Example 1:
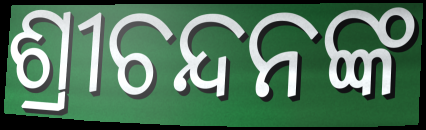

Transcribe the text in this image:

ଶ୍ରୀଚନ୍ଦନଙ୍କ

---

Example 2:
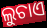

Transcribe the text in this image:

ଲୁଚାଏ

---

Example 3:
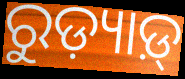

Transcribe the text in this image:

ରୁଡ଼୍ୟାଡ଼୍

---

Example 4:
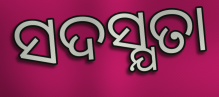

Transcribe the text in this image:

ସଦସ୍ଯତା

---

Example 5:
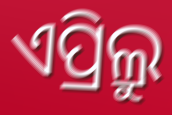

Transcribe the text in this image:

ଏପ୍ରିଲ୍ରୁ